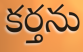
కర్తను